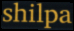
shilpa